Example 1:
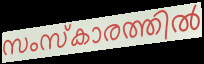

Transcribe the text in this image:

സംസ്കാരത്തിൽ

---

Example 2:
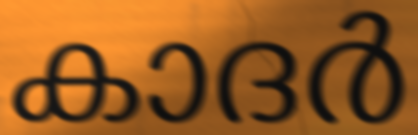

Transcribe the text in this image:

കാദർ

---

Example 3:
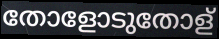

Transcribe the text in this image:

തോളോടുതോള്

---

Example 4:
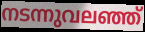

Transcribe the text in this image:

നടന്നുവലഞ്ഞ്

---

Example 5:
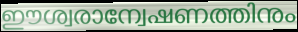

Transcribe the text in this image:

ഈശ്വരാന്വേഷണത്തിനും